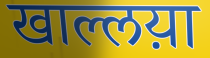
खाल्लय़ा